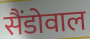
सैंडोवाल